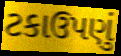
ટકાઉપણું